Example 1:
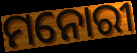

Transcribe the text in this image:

ମନୋରୀ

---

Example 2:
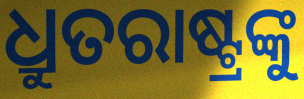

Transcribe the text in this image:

ଧ୍ରୁତରାଷ୍ଟ୍ରଙ୍କୁ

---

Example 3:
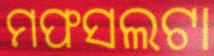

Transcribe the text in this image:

ମଫସଲଟା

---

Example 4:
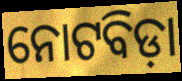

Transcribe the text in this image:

ନୋଟବିଡ଼ା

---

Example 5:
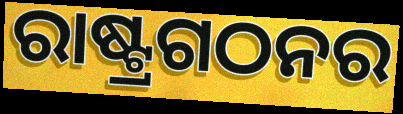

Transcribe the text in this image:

ରାଷ୍ଟ୍ରଗଠନର